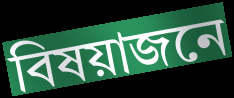
বিষয়াজনে